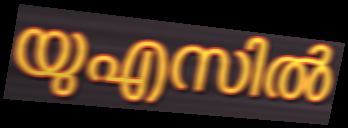
യുഎസിൽ